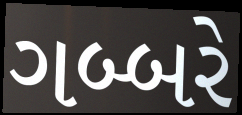
ગબ્બરે